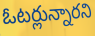
ఓటర్లున్నారని